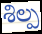
శిల్ప